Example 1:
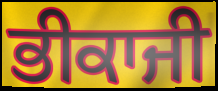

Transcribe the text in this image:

ਭੀਕਾਜੀ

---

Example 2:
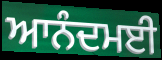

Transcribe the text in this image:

ਆਨੰਦਮਈ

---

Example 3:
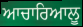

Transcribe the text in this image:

ਆਚਾਰਿਆਲੂ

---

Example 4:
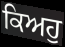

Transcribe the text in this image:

ਕਿਅਹੁ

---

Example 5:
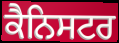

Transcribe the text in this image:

ਕੈਨਿਸਟਰ